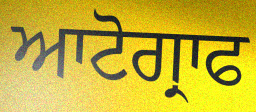
ਆਟੋਗ੍ਰਾਫ